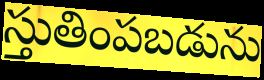
స్తుతింపబడును